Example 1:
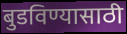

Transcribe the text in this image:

बुडविण्यासाठी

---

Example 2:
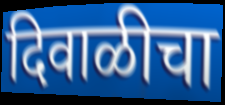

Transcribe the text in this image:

दिवाळीचा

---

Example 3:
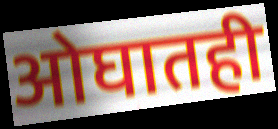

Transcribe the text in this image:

ओघातही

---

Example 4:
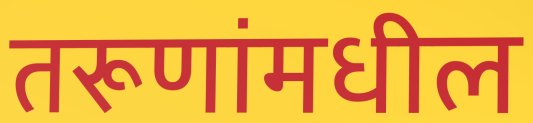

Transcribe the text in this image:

तरूणांमधील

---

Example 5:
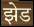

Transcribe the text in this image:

झेड